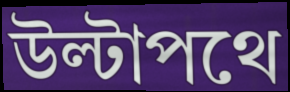
উল্টাপথে